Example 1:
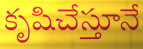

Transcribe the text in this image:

కృషిచేస్తూనే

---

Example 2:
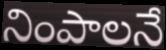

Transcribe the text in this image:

నింపాలనే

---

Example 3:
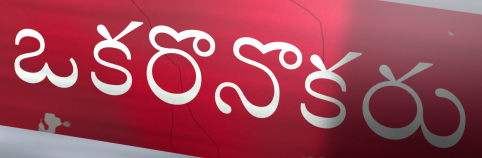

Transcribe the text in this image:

ఒకరొనొకరు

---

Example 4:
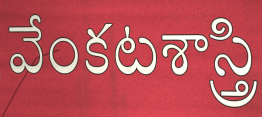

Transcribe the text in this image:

వేంకటశాస్త్రి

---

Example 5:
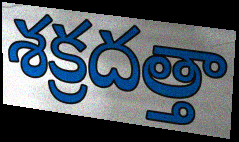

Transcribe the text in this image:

శక్రదత్తా